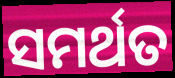
ସମର୍ଥତ